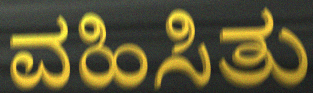
ವಹಿಸಿತು